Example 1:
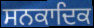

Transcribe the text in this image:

ਸਨਕਾਦਿਕ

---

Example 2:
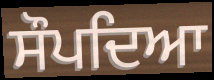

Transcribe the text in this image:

ਸੌਪਦਿਆ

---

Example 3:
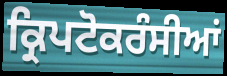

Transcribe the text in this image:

ਕ੍ਰਿਪਟੋਕਰੰਸੀਆਂ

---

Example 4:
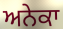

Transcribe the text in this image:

ਅਨੇਕਾ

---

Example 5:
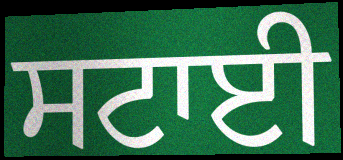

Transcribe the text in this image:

ਸਟਾਈ